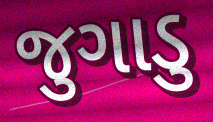
જુગાડુ